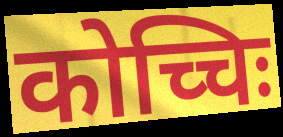
कोच्चिः